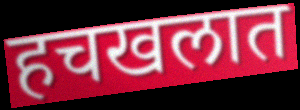
हचखलात